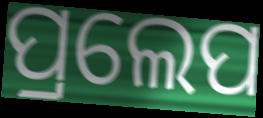
ପ୍ରଲେପ